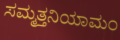
ಸಮ್ಮತ್ತನಿಯಾಮಂ